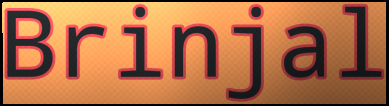
Brinjal